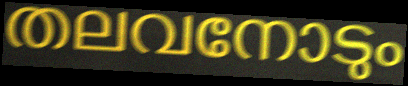
തലവനോടും